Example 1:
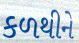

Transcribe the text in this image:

કળથીને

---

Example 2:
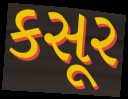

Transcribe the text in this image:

કસૂર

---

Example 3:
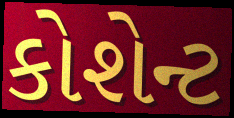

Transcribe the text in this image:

કોશેન્ટ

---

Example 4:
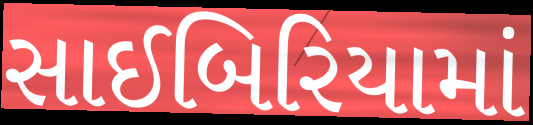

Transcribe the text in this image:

સાઈબિરિયામાં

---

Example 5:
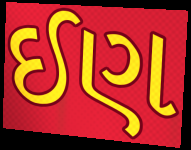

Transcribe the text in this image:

ઈણ